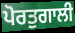
ਪੋਰਤੁਗਾਲੀ